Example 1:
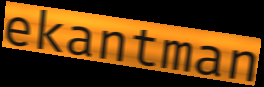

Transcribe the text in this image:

ekantman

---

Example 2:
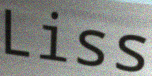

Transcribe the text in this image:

Liss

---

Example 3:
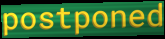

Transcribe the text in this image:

postponed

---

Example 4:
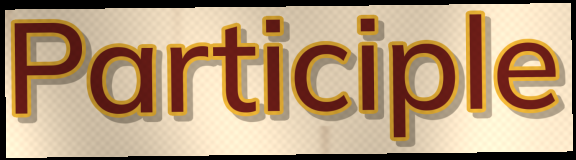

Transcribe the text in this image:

Participle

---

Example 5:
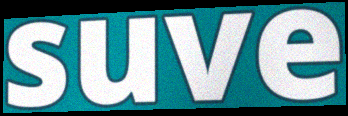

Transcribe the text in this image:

suve